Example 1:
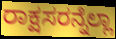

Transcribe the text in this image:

ರಾಕ್ಷಸರನ್ನೆಲ್ಲಾ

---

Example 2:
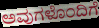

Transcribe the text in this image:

ಅವುಗಳೊಂದಿಗೆ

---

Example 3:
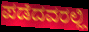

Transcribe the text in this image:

ಪಡೆದವರಲ್ಲಿ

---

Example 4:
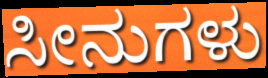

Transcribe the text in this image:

ಸೀನುಗಳು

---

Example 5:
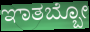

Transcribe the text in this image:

ಞಾತಬ್ಬೋ